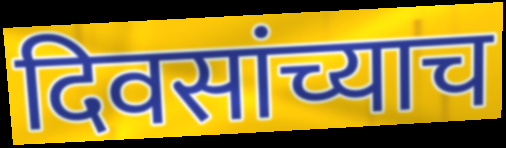
दिवसांच्याच